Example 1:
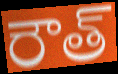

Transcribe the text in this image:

రౌత్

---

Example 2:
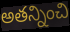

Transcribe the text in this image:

అతన్నించి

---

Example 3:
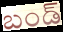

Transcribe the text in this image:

బండ్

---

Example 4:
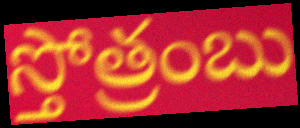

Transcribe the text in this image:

స్తోత్రంబు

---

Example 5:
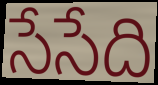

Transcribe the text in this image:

సేసేది